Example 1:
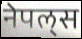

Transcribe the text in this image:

नेपल्स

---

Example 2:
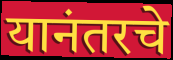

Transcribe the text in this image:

यानंतरचे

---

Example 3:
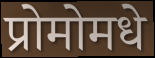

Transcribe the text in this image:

प्रोमोमधे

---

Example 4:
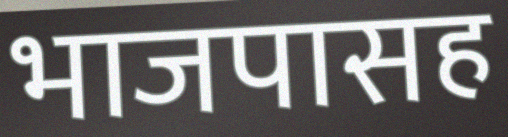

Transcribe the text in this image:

भाजपासह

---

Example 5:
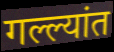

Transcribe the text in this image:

गल्ल्यांत